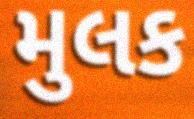
મુલક